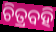
ଚିତ୍ରବହି